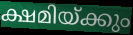
ക്ഷമിയ്ക്കും